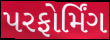
પરફોર્મિંગ